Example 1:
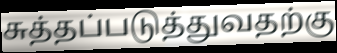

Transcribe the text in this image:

சுத்தப்படுத்துவதற்கு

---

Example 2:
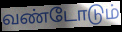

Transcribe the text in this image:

வண்டோடும்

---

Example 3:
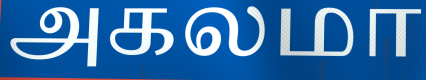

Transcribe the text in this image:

அகலமா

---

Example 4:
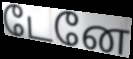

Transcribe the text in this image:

டேனே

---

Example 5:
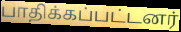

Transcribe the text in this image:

பாதிக்கப்பட்டனர்